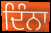
ਦਿੰਨਾ